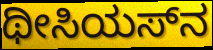
ಥೀಸಿಯಸ್‌ನ